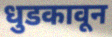
धुडकावून